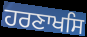
ਹਰਣਾਖਸਿ